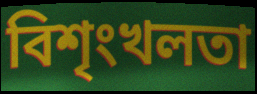
বিশৃংখলতা